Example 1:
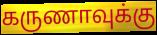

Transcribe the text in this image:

கருணாவுக்கு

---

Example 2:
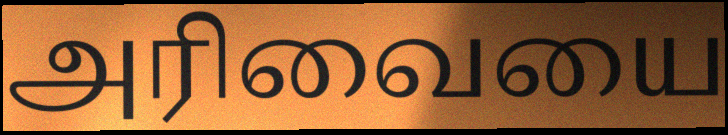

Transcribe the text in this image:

அரிவையை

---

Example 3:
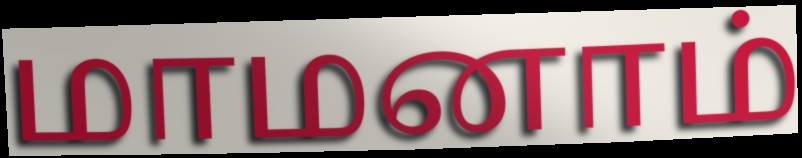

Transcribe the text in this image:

மாமனாம்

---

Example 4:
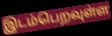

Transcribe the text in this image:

இடம்பெறவுள்ள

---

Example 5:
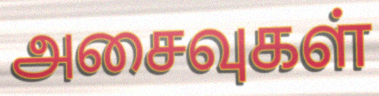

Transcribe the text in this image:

அசைவுகள்